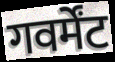
गवर्मेंट